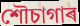
শৌচাগাৰ